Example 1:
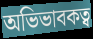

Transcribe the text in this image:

অভিভাবকত্ব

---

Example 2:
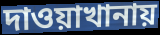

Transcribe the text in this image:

দাওয়াখানায়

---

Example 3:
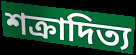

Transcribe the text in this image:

শক্রাদিত্য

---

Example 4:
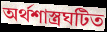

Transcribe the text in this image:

অর্থশাস্ত্রঘটিত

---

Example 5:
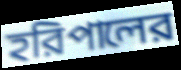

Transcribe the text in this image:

হরিপালের